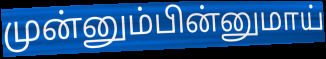
முன்னும்பின்னுமாய்